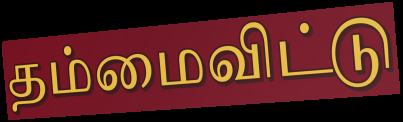
தம்மைவிட்டு